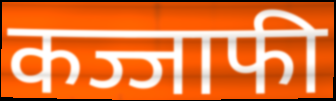
कज्जाफी